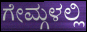
ಗೇಮ್ಗಳಲ್ಲಿ